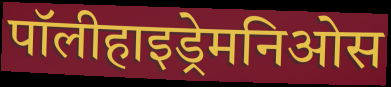
पॉलीहाइड्रेमनिओस